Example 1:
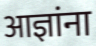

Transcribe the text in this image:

आज्ञांना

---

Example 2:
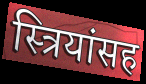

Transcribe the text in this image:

स्त्रियांसह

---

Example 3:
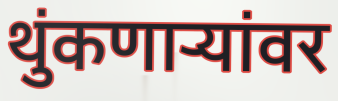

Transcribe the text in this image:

थुंकणाऱ्यांवर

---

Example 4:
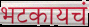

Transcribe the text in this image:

भटकायचं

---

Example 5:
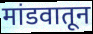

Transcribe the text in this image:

मांडवातून